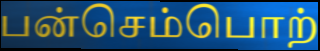
பன்செம்பொற்